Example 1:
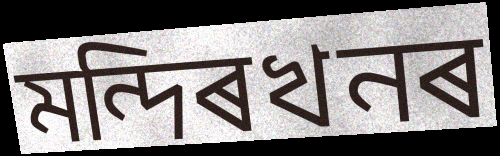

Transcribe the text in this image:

মন্দিৰখনৰ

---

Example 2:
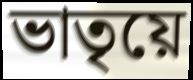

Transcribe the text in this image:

ভাতৃয়ে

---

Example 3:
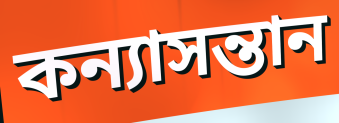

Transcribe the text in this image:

কন্যাসন্তান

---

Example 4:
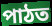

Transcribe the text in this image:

পাঠত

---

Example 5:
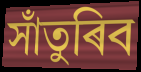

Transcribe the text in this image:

সাঁতুৰিব